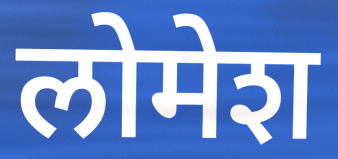
लोमेश